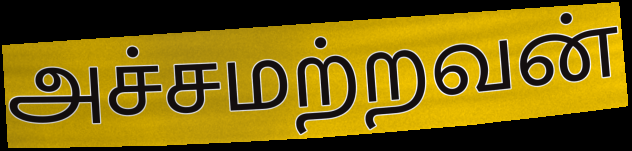
அச்சமற்றவன்